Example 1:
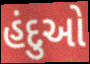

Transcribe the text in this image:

હંદુઓ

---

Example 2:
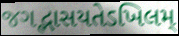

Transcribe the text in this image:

જગદ્ભાસયતેઽખિલમ્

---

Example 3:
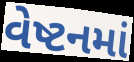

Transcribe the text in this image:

વેષ્ટનમાં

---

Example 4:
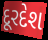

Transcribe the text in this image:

દૂરદેશ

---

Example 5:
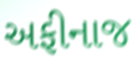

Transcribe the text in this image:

અફીનાજ